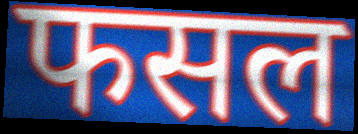
फसल